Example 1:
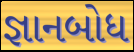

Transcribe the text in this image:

જ્ઞાનબોધ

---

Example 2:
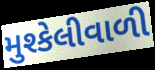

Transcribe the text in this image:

મુશ્કેલીવાળી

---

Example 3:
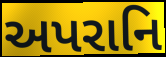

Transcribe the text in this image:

અપરાનિ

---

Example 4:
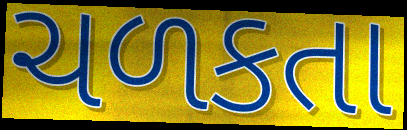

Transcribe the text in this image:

ચળકતા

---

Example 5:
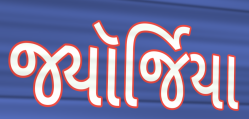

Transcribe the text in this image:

જ્યૉર્જિયા